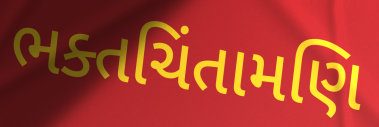
ભક્તચિંતામણિ